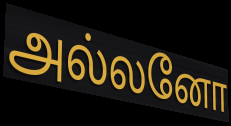
அல்லனோ